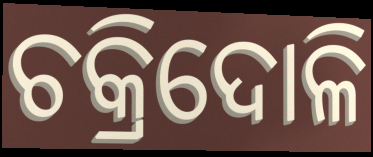
ଚକ୍ରିଦୋଳି